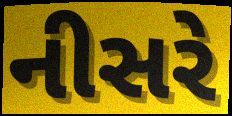
નીસરે